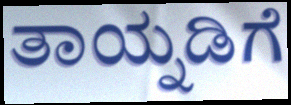
ತಾಯ್ನಡಿಗೆ